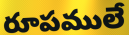
రూపములే